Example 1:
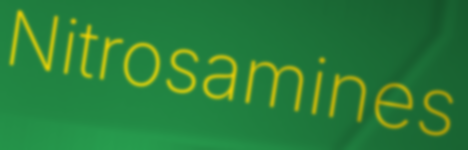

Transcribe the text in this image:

Nitrosamines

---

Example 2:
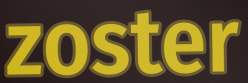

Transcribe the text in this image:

zoster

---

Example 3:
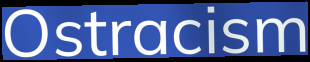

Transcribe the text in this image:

Ostracism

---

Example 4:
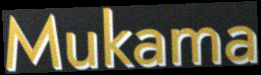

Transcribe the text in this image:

Mukama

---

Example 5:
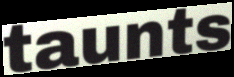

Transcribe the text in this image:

taunts